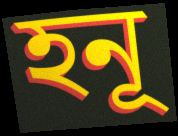
হনূ